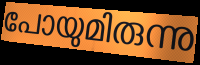
പോയുമിരുന്നു